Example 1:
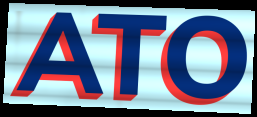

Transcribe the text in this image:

ATO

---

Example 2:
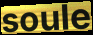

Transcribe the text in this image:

soule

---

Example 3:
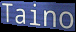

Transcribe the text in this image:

Taino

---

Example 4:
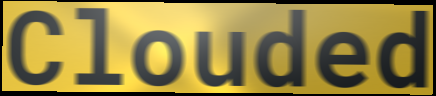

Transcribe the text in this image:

Clouded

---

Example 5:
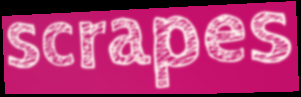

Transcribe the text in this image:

scrapes